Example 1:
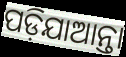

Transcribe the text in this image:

ପଡ଼ିଯାଆନ୍ତା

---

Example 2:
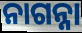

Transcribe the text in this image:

ନାଗନ୍ନା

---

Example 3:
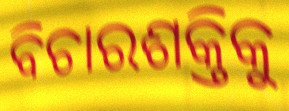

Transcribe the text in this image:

ବିଚାରଶକ୍ତିକୁ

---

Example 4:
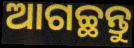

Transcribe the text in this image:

ଆଗଚ୍ଛନ୍ତୁ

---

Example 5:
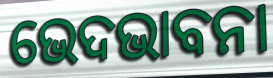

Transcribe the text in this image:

ଭେଦଭାବନା